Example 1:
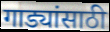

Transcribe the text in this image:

गाड्यांसाठी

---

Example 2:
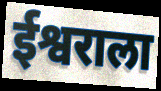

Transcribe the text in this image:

ईश्वराला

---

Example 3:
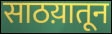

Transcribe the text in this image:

साठय़ातून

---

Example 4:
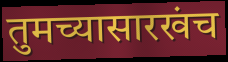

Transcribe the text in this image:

तुमच्यासारखंच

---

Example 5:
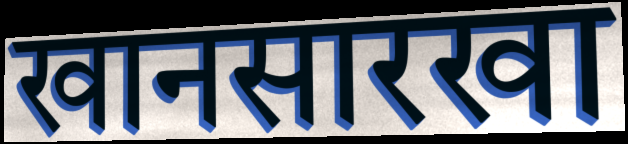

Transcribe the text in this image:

खानसारखा